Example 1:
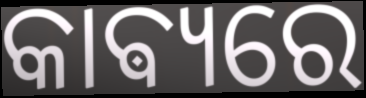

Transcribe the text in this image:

କାଵ୍ଯରେ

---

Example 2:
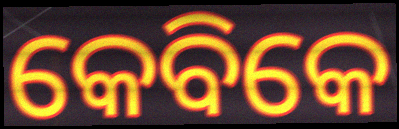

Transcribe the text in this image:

କେବିକେ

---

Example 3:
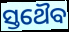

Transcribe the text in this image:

ସ୍ତଥୈବ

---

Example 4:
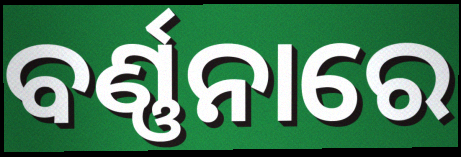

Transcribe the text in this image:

ବର୍ଣ୍ଣନାରେ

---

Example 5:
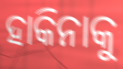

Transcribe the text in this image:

ହାକିନାକୁ